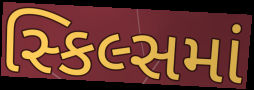
સ્કિલ્સમાં